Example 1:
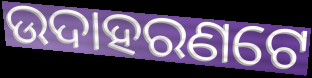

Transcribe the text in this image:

ଉଦାହରଣଟେ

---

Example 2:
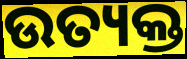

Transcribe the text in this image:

ଉତ୍ୟକ୍ତ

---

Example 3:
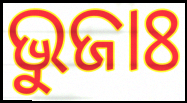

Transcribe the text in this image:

ଭୁଜାଃ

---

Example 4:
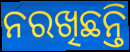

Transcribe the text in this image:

ନରଖିଛନ୍ତି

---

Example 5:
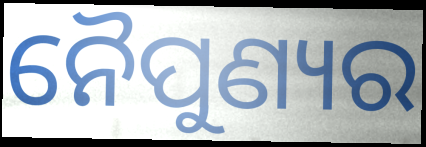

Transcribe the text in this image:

ନୈପୁଣ୍ୟର